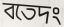
বতেদং